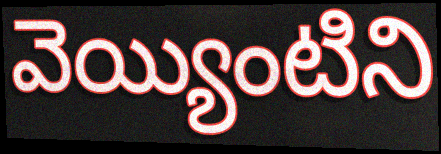
వెయ్యింటిని